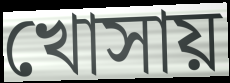
খোসায়